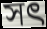
সৎ